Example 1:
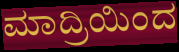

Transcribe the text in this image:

ಮಾದ್ರಿಯಿಂದ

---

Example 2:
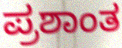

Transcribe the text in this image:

ಪ್ರಶಾಂತ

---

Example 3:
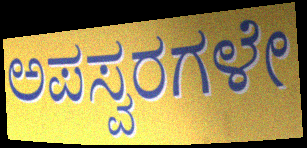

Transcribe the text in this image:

ಅಪಸ್ವರಗಳೇ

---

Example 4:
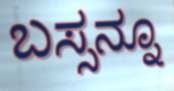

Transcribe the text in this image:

ಬಸ್ಸನ್ನೂ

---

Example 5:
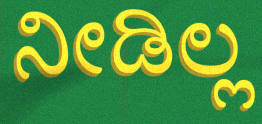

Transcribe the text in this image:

ನೀಡಿಲ್ಲ